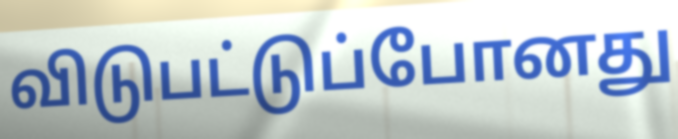
விடுபட்டுப்போனது